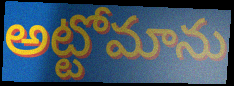
అట్టోమాను